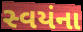
સ્વયંના